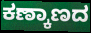
ಕಣ್ಕಾಣದ